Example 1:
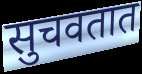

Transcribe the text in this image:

सुचवतात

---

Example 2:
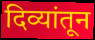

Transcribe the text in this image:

दिव्यांतून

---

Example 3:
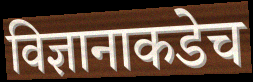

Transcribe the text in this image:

विज्ञानाकडेच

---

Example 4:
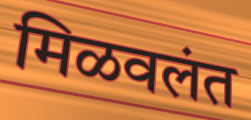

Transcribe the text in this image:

मिळवलंत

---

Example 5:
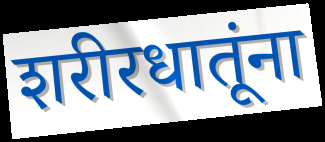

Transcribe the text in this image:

शरीरधातूंना